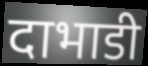
दाभाडी